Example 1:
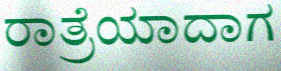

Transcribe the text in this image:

ರಾತ್ರೆಯಾದಾಗ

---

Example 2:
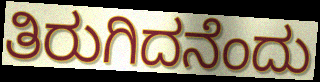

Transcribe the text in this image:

ತಿರುಗಿದನೆಂದು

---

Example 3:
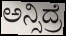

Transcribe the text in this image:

ಅನ್ಸಿದ್ರೆ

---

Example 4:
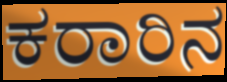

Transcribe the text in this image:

ಕರಾರಿನ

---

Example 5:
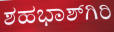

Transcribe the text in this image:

ಶಹಭಾಶ್‌ಗಿರಿ